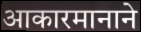
आकारमानाने